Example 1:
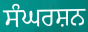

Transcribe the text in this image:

ਸੰਘਰਸ਼ਨ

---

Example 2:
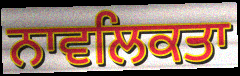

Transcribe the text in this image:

ਨਾਵਲਿਕਤਾ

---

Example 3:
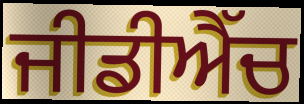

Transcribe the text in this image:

ਜੀਡੀਐੱਚ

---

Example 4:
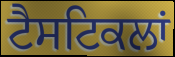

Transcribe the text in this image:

ਟੈਸਟਿਕਲਾਂ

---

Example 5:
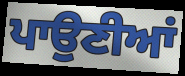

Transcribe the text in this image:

ਪਾਉਣੀਆਂ